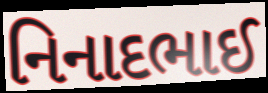
નિનાદભાઈ